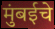
मुंबईचे